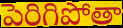
పెరిగిపోతా